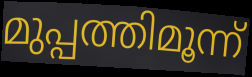
മുപ്പത്തിമൂന്ന്